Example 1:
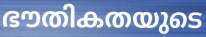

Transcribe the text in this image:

ഭൗതികതയുടെ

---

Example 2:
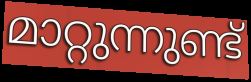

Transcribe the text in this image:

മാറ്റുന്നുണ്ട്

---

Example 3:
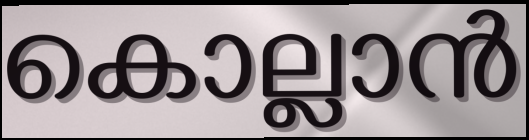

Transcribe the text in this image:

കൊല്ലാൻ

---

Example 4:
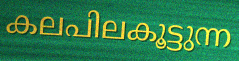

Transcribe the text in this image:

കലപിലകൂട്ടുന്ന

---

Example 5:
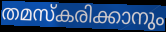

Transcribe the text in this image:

തമസ്കരിക്കാനും